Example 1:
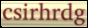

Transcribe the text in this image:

csirhrdg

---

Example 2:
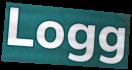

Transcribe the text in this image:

Logg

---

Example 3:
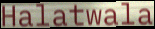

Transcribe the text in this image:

Halatwala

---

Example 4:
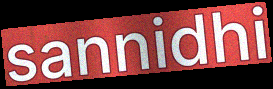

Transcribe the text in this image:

sannidhi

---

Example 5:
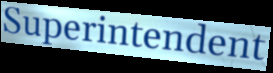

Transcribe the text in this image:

Superintendent